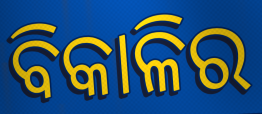
ବିକାଳିର